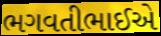
ભગવતીભાઈએ